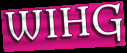
WIHG